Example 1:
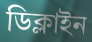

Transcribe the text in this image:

ডিক্লাইন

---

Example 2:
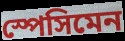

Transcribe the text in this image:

স্পেসিমেন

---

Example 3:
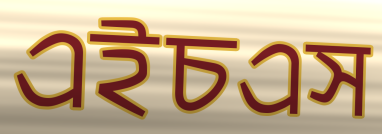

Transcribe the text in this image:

এইচএস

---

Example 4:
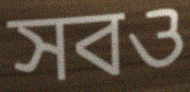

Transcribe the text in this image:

সবও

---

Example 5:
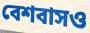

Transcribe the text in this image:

বেশবাসও